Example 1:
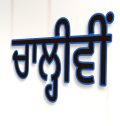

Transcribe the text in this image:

ਚਾਲ੍ਹੀਵੀਂ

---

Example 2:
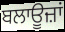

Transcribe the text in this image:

ਬਲਾਊਜ਼ਾਂ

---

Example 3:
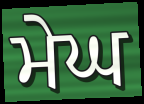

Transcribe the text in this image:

ਮੇਘ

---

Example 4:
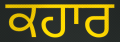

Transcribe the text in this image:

ਕਹਾਰ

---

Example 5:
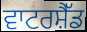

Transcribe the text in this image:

ਵਾਟਰਸ਼ੈੱਡ